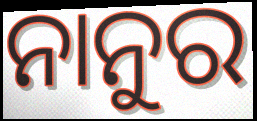
ନାନୁର